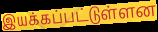
இயக்கப்பட்டுள்ளன